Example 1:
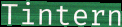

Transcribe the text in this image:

Tintern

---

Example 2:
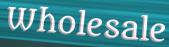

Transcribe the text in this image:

Wholesale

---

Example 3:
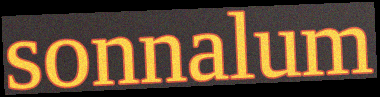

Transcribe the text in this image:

sonnalum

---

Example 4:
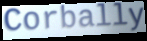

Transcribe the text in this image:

Corbally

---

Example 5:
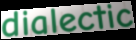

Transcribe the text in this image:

dialectic